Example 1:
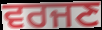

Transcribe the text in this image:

ਵਰਜਣ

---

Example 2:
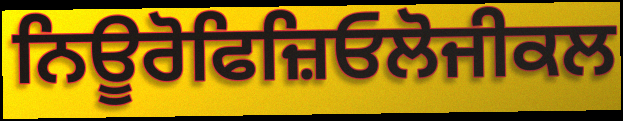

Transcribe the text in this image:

ਨਿਊਰੋਫਿਜ਼ਿਓਲੋਜੀਕਲ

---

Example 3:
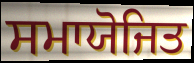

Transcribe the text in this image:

ਸਮਾਯੋਜਿਤ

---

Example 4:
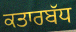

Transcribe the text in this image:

ਕਤਾਰਬੱਧ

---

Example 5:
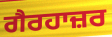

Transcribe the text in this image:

ਗੈਰਹਾਜ਼ਰ